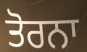
ਤੋਰਨਾ